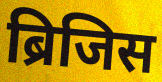
ब्रिजिस